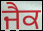
ਜੈਕ